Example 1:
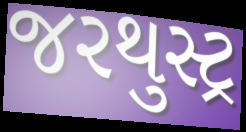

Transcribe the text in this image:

જરથુસ્ટ્ર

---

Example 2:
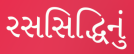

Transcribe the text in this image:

રસસિદ્ધિનું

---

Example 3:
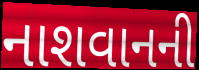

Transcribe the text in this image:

નાશવાનની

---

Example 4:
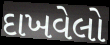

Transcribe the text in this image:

દાખવેલો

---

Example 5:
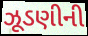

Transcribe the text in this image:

ઝૂડણીની